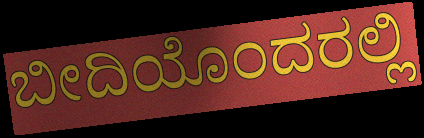
ಬೀದಿಯೊಂದರಲ್ಲಿ